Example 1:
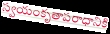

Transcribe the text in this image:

స్వయంకృతాపరాధానికి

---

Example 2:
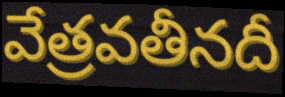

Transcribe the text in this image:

వేత్రవతీనదీ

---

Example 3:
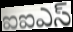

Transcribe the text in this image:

ఐఐఎస్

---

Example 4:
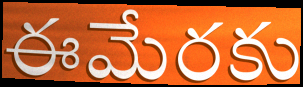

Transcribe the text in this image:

ఈమేరకు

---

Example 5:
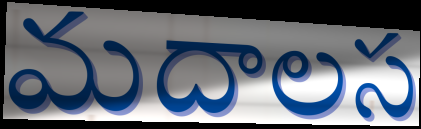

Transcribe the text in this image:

మదాలస